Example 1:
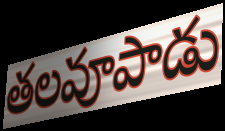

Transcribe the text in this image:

తలవూపాడు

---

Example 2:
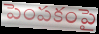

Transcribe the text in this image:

పెంపకంపై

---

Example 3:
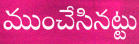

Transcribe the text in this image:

ముంచేసినట్టు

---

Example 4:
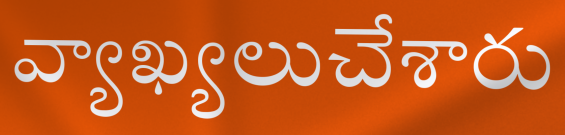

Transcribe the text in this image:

వ్యాఖ్యలుచేశారు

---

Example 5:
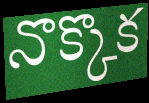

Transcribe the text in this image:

నొక్కొక